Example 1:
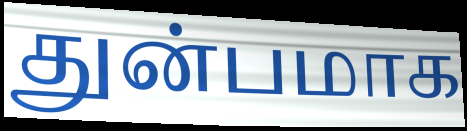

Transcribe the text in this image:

துன்பமாக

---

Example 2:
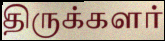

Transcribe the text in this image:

திருக்களர்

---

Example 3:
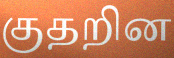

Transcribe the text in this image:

குதறின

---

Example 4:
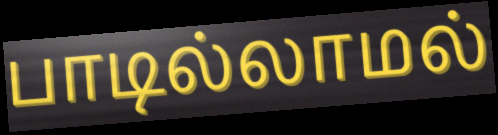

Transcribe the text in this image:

பாடில்லாமல்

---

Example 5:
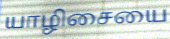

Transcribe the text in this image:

யாழிசையை